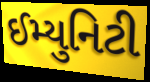
ઈમ્યુનિટી